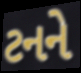
ટનને